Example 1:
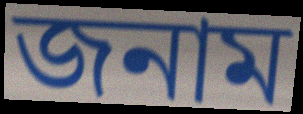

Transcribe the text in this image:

জনাম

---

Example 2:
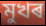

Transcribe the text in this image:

মুখৰ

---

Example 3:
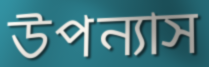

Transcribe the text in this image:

উপন্যাস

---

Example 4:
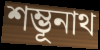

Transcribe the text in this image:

শম্ভূনাথ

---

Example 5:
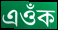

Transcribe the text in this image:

এওঁক